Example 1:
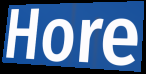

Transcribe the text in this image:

Hore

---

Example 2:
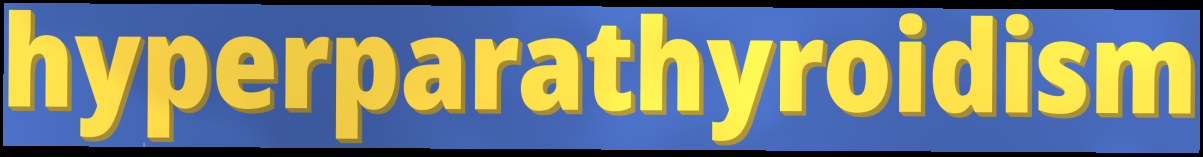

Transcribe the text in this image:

hyperparathyroidism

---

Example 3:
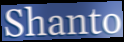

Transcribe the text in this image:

Shanto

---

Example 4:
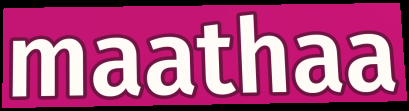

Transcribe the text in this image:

maathaa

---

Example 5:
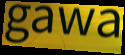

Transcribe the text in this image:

gawa